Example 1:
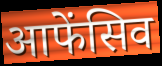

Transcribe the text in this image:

आफेंसिव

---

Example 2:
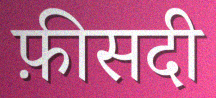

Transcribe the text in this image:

फ़ीसदी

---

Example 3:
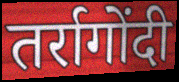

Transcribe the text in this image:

तर्रागोंदी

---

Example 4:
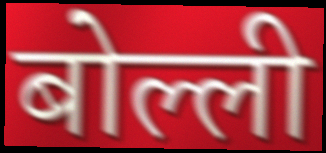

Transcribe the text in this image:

बोल्ली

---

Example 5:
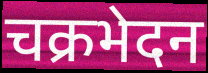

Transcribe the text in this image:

चक्रभेदन